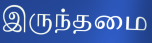
இருந்தமை